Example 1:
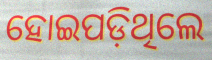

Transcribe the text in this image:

ହୋଇପଡ଼ିଥିଲେ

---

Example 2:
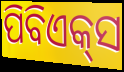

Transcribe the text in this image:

ପିବିଏକ୍‌ସ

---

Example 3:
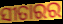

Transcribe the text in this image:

ସୀତାରର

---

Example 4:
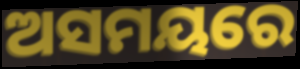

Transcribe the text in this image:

ଅସମୟରେ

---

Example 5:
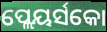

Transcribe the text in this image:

ପ୍ଲେୟର୍ସକୋ